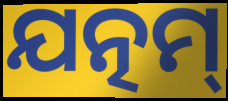
ଯତ୍ନମ୍